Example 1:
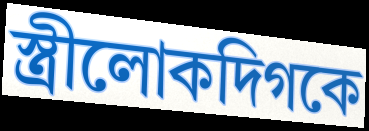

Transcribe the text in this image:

স্ত্রীলোকদিগকে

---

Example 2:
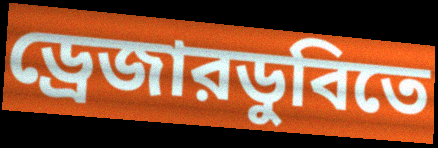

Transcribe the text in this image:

ড্রেজারডুবিতে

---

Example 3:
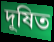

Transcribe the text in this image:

দূষিত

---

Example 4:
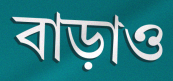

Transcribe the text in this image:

বাড়াও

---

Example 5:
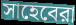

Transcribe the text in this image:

সাহেবেরা